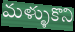
మళ్ళుకొని